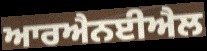
ਆਰਐਨਈਐਲ